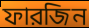
ফারজিন